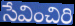
సేవించిరి